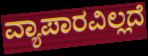
ವ್ಯಾಪಾರವಿಲ್ಲದೆ